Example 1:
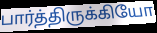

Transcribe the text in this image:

பார்த்திருக்கியோ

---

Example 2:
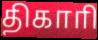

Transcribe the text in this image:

திகாரி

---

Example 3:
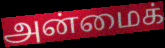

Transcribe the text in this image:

அன்மைக்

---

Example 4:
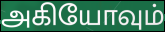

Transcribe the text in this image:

அகியோவும்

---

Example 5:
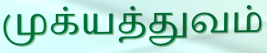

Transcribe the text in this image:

முக்யத்துவம்